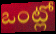
ఒంట్లో